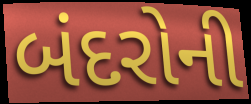
બંદરોની